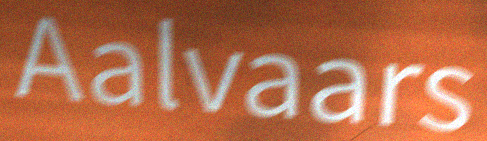
Aalvaars